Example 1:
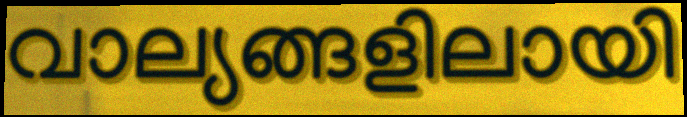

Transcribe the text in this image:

വാല്യങ്ങളിലായി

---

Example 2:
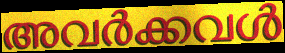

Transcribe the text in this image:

അവർക്കവൾ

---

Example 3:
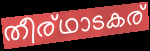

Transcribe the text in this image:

തീര്ഥാടകര്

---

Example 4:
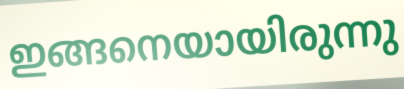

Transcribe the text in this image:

ഇങ്ങനെയായിരുന്നു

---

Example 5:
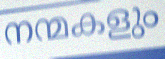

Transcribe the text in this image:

നന്മകളും